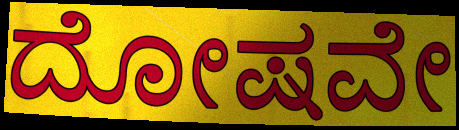
ದೋಷವೇ